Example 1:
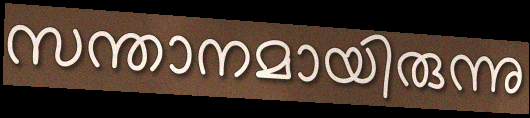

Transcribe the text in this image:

സന്താനമായിരുന്നു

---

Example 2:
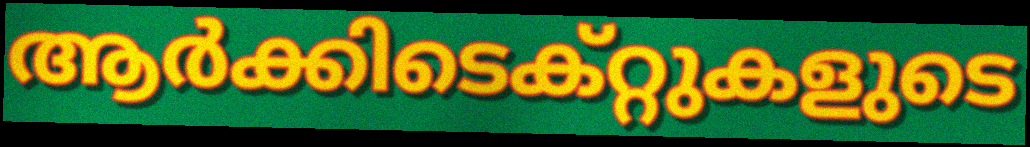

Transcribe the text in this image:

ആർക്കിടെക്റ്റുകളുടെ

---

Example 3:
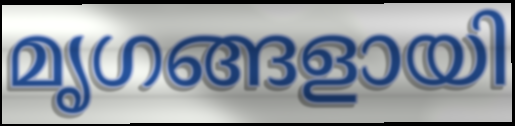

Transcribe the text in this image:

മൃഗങ്ങളായി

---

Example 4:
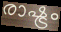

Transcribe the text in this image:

രാഷ്ട്രം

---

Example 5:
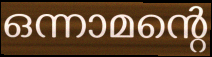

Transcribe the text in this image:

ഒന്നാമന്റെ